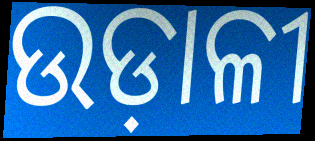
ଉଡ଼ାଳୀ